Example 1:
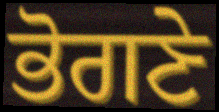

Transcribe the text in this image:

ਭੋਗਣੇ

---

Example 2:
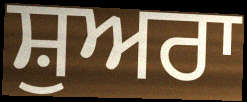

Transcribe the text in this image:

ਸ਼ੁਅਰਾ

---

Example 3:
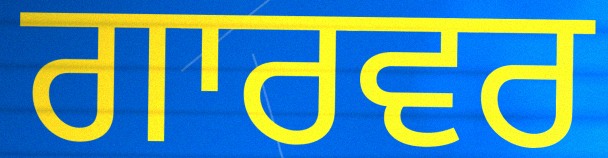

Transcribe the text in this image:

ਗਾਰਵਰ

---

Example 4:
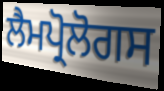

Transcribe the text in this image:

ਲੈਮਪ੍ਰੋਲੋਗਸ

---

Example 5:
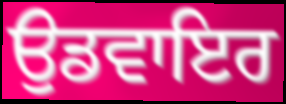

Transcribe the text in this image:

ਉਡਵਾਇਰ